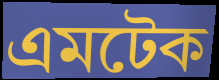
এমটেক